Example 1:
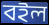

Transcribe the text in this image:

বইল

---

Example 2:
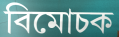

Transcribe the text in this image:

বিমোচক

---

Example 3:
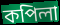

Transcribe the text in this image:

কপিলা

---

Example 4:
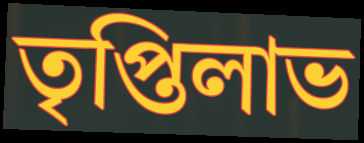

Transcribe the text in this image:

তৃপ্তিলাভ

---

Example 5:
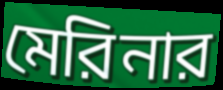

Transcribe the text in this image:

মেরিনার